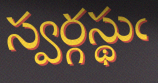
స్వర్గస్థుఁ